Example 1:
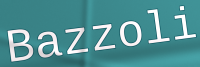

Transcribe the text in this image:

Bazzoli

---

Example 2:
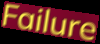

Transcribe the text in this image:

Failure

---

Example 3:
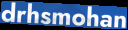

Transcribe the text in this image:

drhsmohan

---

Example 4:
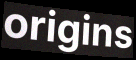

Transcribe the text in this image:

origins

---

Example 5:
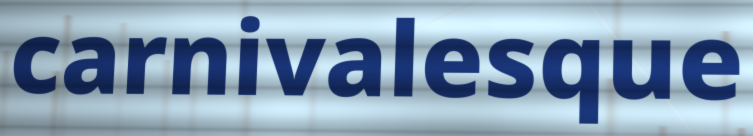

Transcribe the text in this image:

carnivalesque